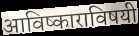
आविष्काराविषयी